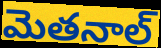
మెతనాల్